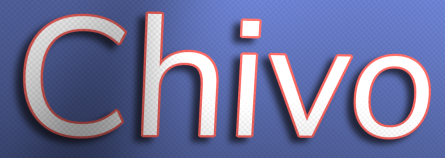
Chivo